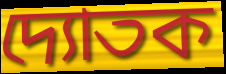
দ্যোতক